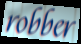
robber